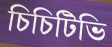
চিচিটিভি